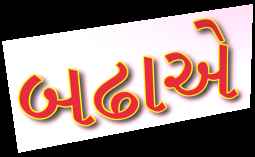
બઢાએ